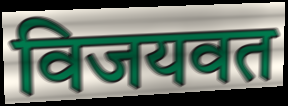
विजयवत